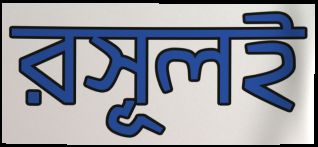
রসূলই